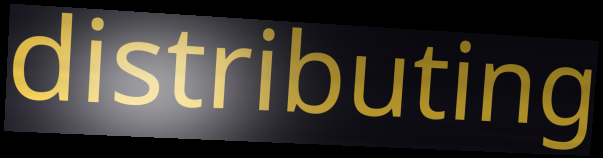
distributing